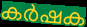
കർഷക